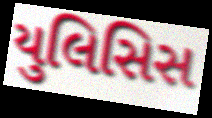
યુલિસિસ